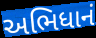
અભિધાનં